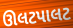
ઊલટપાલટ